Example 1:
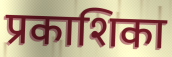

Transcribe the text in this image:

प्रकाशिका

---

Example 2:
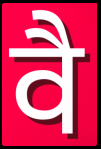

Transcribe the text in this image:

वै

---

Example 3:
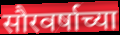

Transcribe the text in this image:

सौरवर्षाच्या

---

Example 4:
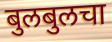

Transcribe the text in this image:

बुलबुलचा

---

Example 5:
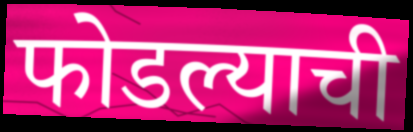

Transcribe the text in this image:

फोडल्याची